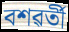
বশৱৰ্তী